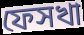
ফেসখা